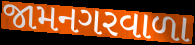
જામનગરવાળા